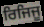
ਰਿਜਿਜੂ